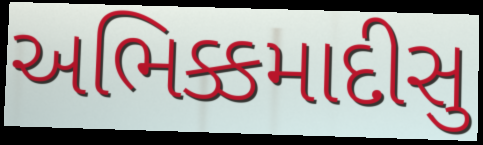
અભિક્કમાદીસુ